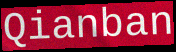
Qianban